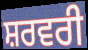
ਸ਼ਰਵਰੀ